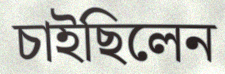
চাইছিলেন